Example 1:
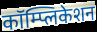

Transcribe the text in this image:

कॉम्प्लिकेशन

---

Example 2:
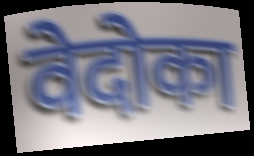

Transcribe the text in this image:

वेदोका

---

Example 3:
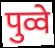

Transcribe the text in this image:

पुव्वे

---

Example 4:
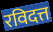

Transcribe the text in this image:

रविदत्त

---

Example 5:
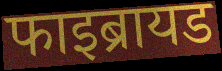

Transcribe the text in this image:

फाइब्रायड